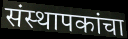
संस्थापकांचा